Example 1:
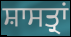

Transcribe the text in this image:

ਸ਼ਾਸਤ੍ਰਾਂ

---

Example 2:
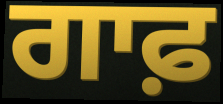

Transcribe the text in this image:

ਗਾਫ਼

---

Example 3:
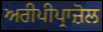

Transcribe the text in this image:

ਅਰੀਪੀਪ੍ਰਾਜ਼ੋਲ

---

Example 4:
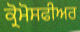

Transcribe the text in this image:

ਕ੍ਰੋਮੋਸਫੀਅਰ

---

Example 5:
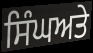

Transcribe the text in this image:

ਸਿੰਘਅਤੇ